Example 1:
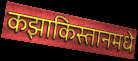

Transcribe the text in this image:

कझाकिस्तानमधे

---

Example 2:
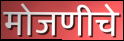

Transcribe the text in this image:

मोजणीचे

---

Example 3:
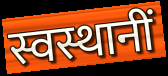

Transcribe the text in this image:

स्वस्थानीं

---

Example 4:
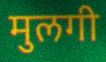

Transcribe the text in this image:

मुलगी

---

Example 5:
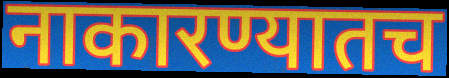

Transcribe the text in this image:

नाकारण्यातच